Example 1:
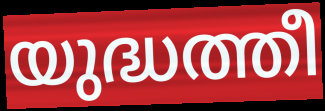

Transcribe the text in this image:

യുദ്ധത്തീ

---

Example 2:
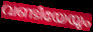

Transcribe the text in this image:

വണ്ടിയേയും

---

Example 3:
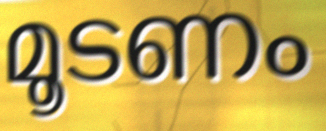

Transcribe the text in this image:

മൂടണം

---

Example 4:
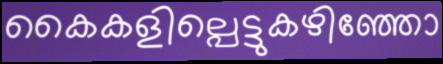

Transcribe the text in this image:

കൈകളില്പെട്ടുകഴിഞ്ഞോ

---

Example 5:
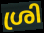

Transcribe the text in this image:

ശ്രി